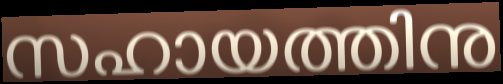
സഹായത്തിനു